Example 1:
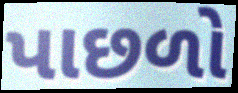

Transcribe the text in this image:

પાછળો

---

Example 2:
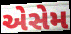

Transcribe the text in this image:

એસેમ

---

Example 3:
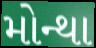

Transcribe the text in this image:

મોન્થા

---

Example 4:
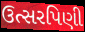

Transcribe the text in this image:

ઉત્સરપિણી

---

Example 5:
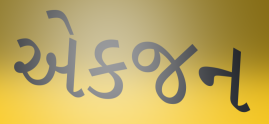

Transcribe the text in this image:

એકજન